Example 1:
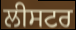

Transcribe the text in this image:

ਲੀਸਟਰ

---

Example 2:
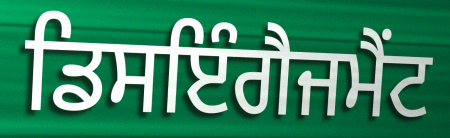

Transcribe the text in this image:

ਡਿਸਇੰਗੈਜਮੈਂਟ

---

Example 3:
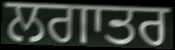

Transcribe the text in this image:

ਲਗਾਤਰ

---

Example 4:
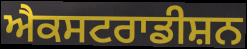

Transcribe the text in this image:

ਐਕਸਟਰਾਡੀਸ਼ਨ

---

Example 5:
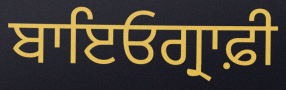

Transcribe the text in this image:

ਬਾਇਓਗ੍ਰਾਫ਼ੀ